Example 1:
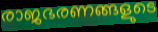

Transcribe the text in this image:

രാജഭരണങ്ങളുടെ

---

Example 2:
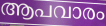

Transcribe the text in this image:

ആപവാരം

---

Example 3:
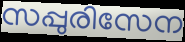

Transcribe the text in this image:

സപ്പുരിസേന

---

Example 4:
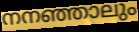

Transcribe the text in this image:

നനഞ്ഞാലും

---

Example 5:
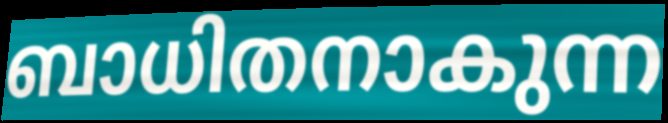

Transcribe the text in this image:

ബാധിതനാകുന്ന